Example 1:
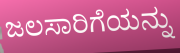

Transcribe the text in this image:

ಜಲಸಾರಿಗೆಯನ್ನು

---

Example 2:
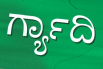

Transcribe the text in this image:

ರ್ಗ್ಯಾದಿ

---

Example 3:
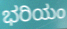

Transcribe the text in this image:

ಭರಿಯಂ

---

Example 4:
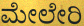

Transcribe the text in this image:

ಮೇಲೇರಿ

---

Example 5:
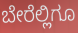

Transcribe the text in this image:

ಬೇರೆಲ್ಲಿಗೂ